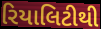
રિયાલિટીથી